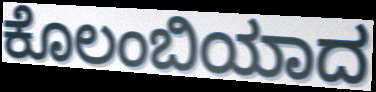
ಕೊಲಂಬಿಯಾದ